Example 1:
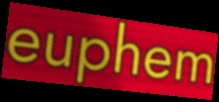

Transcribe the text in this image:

euphem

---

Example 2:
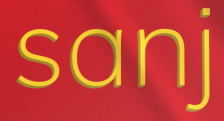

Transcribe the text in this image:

sanj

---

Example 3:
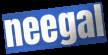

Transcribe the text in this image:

neegal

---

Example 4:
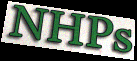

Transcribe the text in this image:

NHPs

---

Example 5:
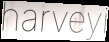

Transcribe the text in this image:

harveyi